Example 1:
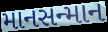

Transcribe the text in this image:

માનસન્માન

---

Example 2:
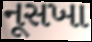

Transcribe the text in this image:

નૂસખા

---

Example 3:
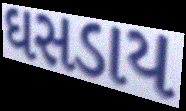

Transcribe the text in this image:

ઘસડાય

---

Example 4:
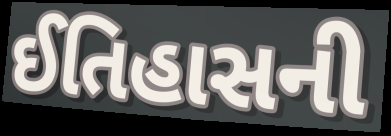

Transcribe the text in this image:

ઈતિહાસની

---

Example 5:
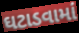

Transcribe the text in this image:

ઘટાડવામાં